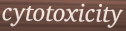
cytotoxicity